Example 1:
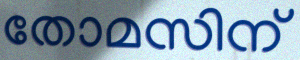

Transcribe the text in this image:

തോമസിന്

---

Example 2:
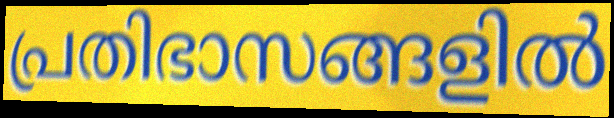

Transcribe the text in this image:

പ്രതിഭാസങ്ങളിൽ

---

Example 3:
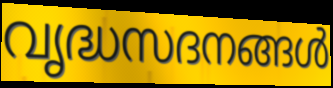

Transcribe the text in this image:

വൃദ്ധസദനങ്ങൾ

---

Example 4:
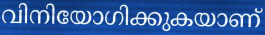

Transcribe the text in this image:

വിനിയോഗിക്കുകയാണ്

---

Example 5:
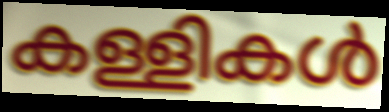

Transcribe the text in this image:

കള്ളികൾ